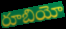
రూబియో